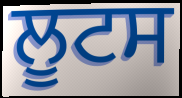
ਲੂਟਸ